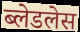
ब्लेडलेस